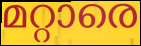
മറ്റാരെ